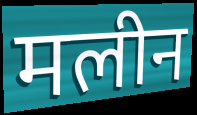
मलीन